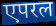
एपरल